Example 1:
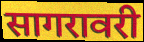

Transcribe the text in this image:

सागरावरी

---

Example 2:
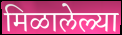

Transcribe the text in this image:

मिळालेल्या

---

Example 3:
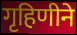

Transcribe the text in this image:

गृहिणीने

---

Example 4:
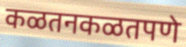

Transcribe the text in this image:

कळतनकळतपणे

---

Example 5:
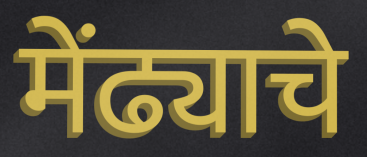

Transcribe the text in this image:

मेंढ्याचे